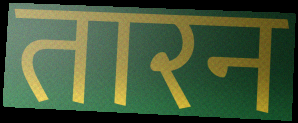
तारन